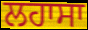
ਲਹਾਸਾ